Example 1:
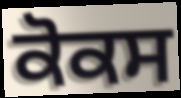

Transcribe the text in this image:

ਕੋਕਸ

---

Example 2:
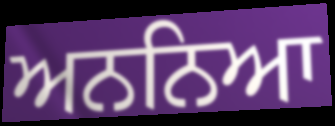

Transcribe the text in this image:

ਅਨਨਿਆ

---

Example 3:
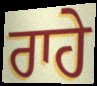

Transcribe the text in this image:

ਰਾਹੇ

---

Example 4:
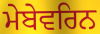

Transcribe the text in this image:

ਮੇਬੇਵਰਿਨ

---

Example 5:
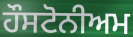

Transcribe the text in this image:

ਹੌਸਟੋਨੀਅਮ